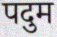
पदुम